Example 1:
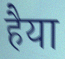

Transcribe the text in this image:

हैया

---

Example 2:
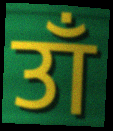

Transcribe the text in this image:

उाँ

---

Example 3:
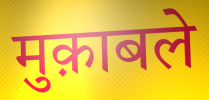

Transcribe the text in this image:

मुक़ाबले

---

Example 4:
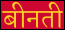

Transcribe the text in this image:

बीनती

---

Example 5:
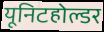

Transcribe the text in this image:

यूनिटहोल्डर